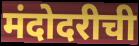
मंदोदरीची